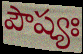
పౌష్యః